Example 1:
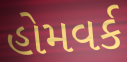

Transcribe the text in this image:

હોમવર્ક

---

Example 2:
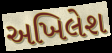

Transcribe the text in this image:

અખિલેશ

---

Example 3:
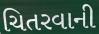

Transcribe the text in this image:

ચિતરવાની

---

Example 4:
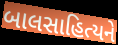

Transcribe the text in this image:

બાલસાહિત્યને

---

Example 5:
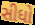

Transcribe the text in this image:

સીધો